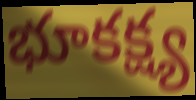
భూకక్ష్య